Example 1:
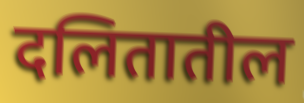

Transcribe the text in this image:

दलितातील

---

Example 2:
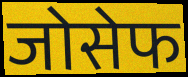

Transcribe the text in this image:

जोसेफ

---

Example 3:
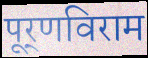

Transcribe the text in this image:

पूर्णविराम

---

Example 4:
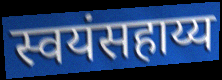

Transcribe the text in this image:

स्वयंसहाय्य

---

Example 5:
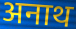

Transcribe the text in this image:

अनाथ